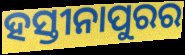
ହସ୍ତୀନାପୁରର